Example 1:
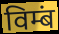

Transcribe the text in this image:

विम्बं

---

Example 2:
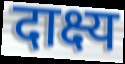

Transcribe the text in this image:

दाक्ष्य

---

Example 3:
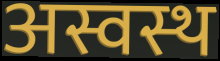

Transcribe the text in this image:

अस्वस्थ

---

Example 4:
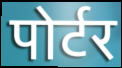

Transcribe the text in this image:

पोर्टर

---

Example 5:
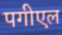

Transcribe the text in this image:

पगीएल